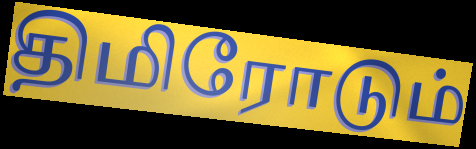
திமிரோடும்